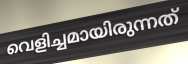
വെളിച്ചമായിരുന്നത്